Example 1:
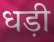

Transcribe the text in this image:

धड़ी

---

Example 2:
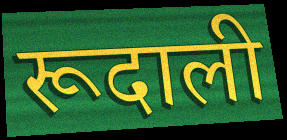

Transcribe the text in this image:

रूदाली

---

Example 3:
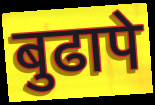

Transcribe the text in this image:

बुढापे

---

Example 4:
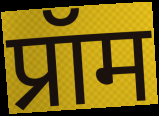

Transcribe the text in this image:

प्रॉम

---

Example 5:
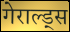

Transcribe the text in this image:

गेराल्ड्स